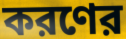
করণের